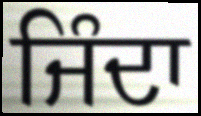
ਜਿੰਦਾ